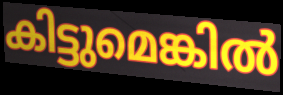
കിട്ടുമെങ്കിൽ